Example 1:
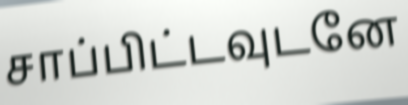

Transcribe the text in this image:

சாப்பிட்டவுடனே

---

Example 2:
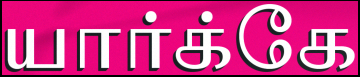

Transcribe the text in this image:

யார்க்கே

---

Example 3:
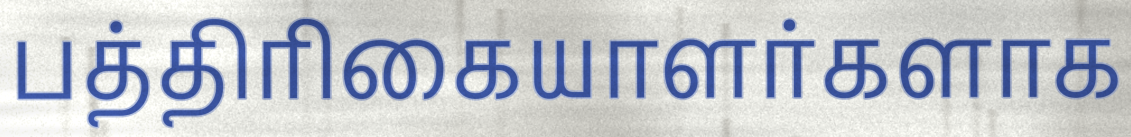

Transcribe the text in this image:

பத்திரிகையாளர்களாக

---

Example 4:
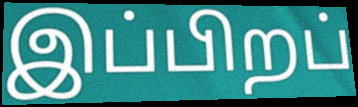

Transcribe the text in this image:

இப்பிறப்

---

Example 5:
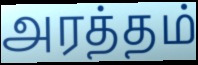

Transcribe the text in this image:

அரத்தம்